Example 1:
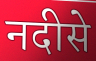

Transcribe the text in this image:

नदीसे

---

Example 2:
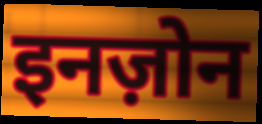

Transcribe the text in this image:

इनज़ोन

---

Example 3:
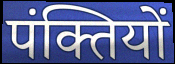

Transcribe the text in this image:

पंक्तियों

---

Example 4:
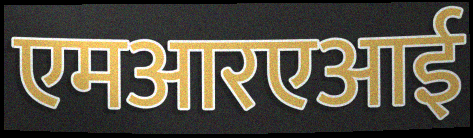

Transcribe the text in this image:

एमआरएआई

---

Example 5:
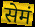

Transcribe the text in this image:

सेमं